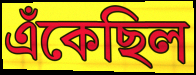
এঁকেছিল